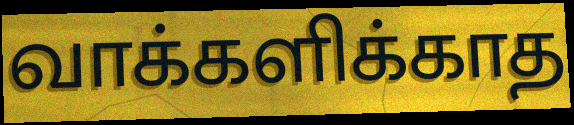
வாக்களிக்காத